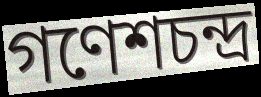
গণেশচন্দ্র